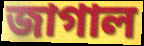
জাগাল